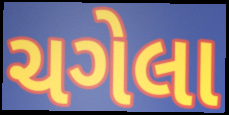
ચગેલા